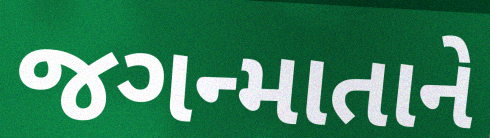
જગન્માતાને